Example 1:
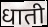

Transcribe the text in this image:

धाती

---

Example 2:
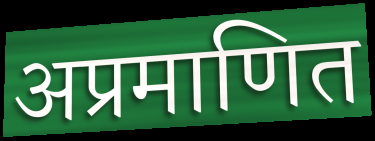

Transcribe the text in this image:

अप्रमाणित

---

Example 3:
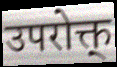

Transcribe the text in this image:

उपरोक्त्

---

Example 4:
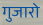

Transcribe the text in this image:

गुजारो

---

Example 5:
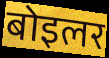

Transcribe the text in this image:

बोइलर